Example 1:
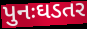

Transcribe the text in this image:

પુનઃઘડતર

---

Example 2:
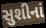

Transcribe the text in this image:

સુશીનાં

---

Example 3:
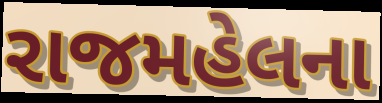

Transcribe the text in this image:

રાજમહેલના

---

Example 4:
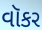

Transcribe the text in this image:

વૉકર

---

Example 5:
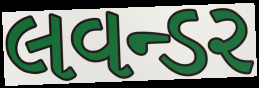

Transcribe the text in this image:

લવન્ડર